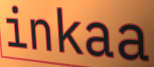
inkaa